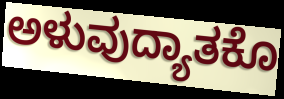
ಅಳುವುದ್ಯಾತಕೊ